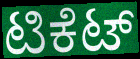
ಟಿಕೆಟ್